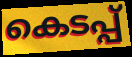
കെടപ്പ്